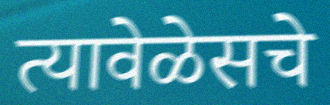
त्यावेळेसचे